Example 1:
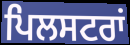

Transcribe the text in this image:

ਪਿਲਸਟਰਾਂ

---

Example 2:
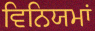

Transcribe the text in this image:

ਵਿਨਿਯਮਾਂ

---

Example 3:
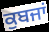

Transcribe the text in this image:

ਕੁਬਜਾਂ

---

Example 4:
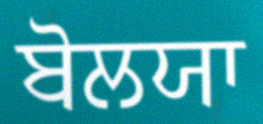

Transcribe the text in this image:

ਬੋਲਯਾ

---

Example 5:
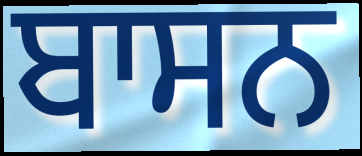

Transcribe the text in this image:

ਬਾਸਨ